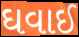
ઘવાઈ